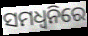
ସମଧ୍ୱନିରେ